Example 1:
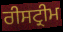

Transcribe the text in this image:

ਰੀਸਟ੍ਰੀਮ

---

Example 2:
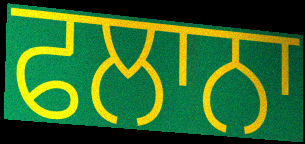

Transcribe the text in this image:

ਫਲਾਨਾ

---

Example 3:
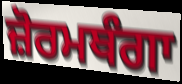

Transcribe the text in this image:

ਜ਼ੋਰਮਥੰਗਾ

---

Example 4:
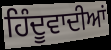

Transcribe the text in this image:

ਹਿੰਦੂਵਾਦੀਆਂ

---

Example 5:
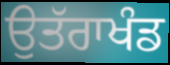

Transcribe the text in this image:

ਉਤੱਰਾਖੰਡ